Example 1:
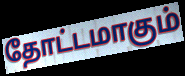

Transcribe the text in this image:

தோட்டமாகும்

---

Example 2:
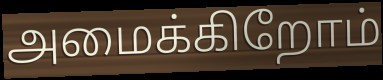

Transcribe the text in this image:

அமைக்கிறோம்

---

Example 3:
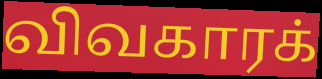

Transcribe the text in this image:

விவகாரக்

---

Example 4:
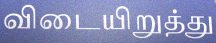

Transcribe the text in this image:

விடையிறுத்து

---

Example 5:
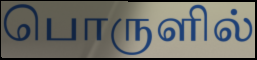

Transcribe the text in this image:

பொருளில்